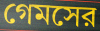
গেমসের